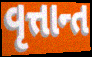
વૃત્તાન્ત